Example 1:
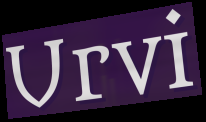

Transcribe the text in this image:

Urvi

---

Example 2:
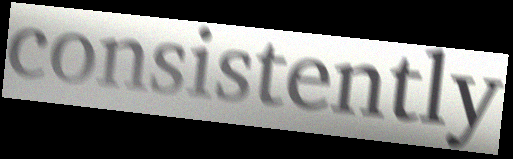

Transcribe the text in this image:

consistently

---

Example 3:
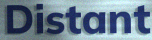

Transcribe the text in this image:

Distant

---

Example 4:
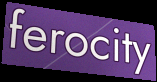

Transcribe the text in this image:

ferocity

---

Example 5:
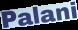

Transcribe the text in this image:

Palani